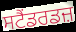
ਸਟੈਂਡਰਡਜ਼